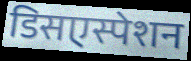
डिसएस्पेशन